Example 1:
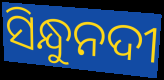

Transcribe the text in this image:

ସିନ୍ଧୁନଦୀ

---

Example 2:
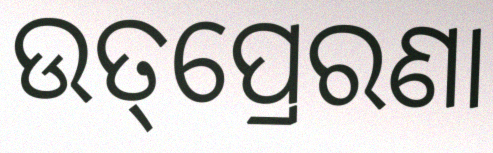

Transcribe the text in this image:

ଉତ୍‌ପ୍ରେରଣା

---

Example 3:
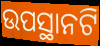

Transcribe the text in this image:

ଉପସ୍ଥାନଟି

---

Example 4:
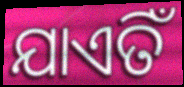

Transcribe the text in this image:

ଯାଏତିଁ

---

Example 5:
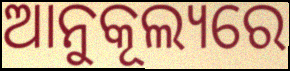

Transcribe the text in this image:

ଆନୁକୂଲ୍ୟରେ